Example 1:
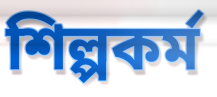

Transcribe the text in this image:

শিল্পকৰ্ম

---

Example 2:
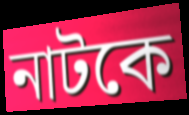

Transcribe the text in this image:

নাটকে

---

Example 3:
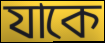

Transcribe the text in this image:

যাকে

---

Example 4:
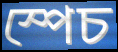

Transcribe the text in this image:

স্পেচ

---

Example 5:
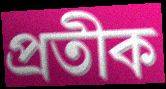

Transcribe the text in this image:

প্ৰতীক